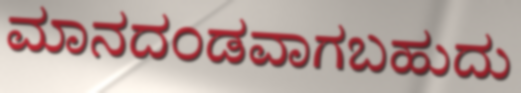
ಮಾನದಂಡವಾಗಬಹುದು